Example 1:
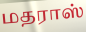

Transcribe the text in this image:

மதராஸ்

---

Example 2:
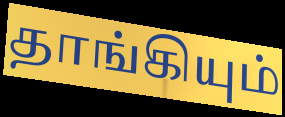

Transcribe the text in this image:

தாங்கியும்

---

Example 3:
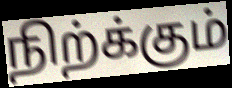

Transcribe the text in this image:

நிற்க்கும்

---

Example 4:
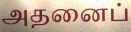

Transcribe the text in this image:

அதனைப்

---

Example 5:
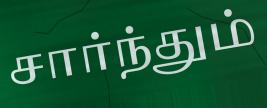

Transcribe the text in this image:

சார்ந்தும்